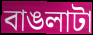
বাঙলাটা